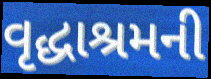
વૃદ્ધાશ્રમની